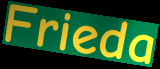
Frieda